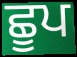
ਛੂਪ